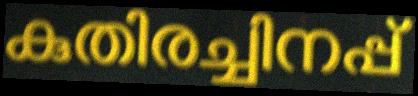
കുതിരച്ചിനപ്പ്